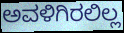
ಅವಳಿಗಿರಲಿಲ್ಲ